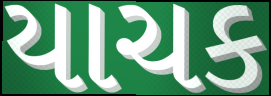
યાચક